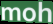
moh